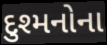
દુશ્મનોના